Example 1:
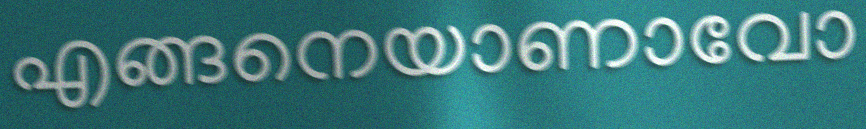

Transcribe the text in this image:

എങ്ങനെയാണാവോ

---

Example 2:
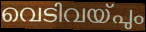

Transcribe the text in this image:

വെടിവയ്പും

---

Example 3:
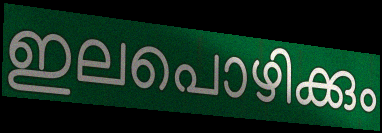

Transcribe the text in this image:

ഇലപൊഴിക്കും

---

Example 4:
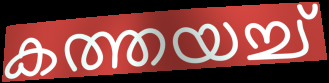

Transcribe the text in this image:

കത്തയച്ച്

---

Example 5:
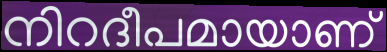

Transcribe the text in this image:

നിറദീപമായാണ്